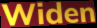
Widen